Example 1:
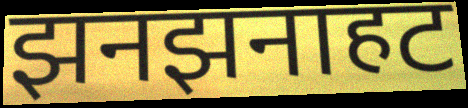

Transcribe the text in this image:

झनझनाहट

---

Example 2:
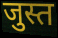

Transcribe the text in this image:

जुस्त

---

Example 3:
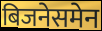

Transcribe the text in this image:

बिजनेसमेन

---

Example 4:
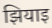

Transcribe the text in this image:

झियाइ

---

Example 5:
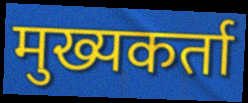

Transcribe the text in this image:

मुख्यकर्ता